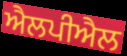
ਐਲਪੀਐਲ